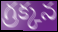
గ్రక్కన